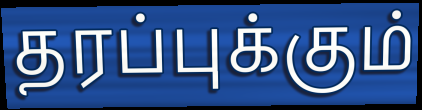
தரப்புக்கும்